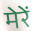
मेरें